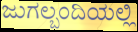
ಜುಗಲ್ಬಂದಿಯಲ್ಲಿ